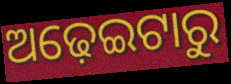
ଅଢ଼େଇଟାରୁ